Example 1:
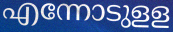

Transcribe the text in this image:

എന്നോടുളള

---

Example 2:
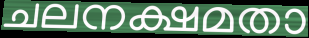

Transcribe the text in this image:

ചലനക്ഷമതാ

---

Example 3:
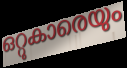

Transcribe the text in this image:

ഒറ്റുകാരെയും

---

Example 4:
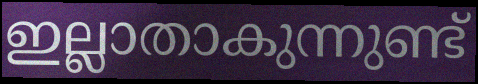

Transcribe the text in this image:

ഇല്ലാതാകുന്നുണ്ട്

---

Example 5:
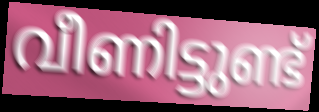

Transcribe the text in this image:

വീണിട്ടുണ്ട്